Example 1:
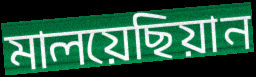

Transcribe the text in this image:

মালয়েছিয়ান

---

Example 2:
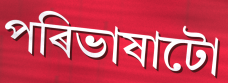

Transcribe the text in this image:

পৰিভাষাটো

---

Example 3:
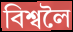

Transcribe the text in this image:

বিশ্বলৈ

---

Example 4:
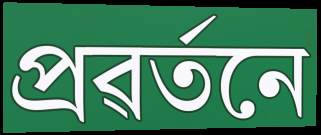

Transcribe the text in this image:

প্ৰৱৰ্তনে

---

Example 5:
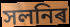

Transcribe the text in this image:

সলনিৰ